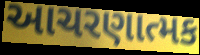
આચરણાત્મક